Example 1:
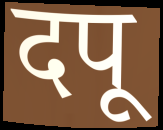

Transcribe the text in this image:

दपू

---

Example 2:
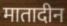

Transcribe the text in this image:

मातादीन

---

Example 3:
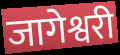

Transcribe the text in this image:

जागेश्वरी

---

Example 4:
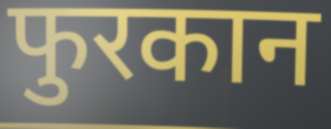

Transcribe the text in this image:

फुरकान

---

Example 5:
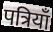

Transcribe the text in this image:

पत्रियाँ